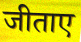
जीताए